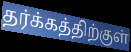
தர்க்கத்திற்குள்